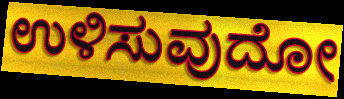
ಉಳಿಸುವುದೋ